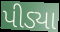
પીડ્યા